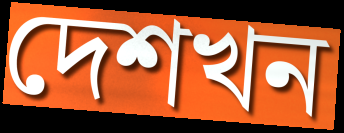
দেশখন